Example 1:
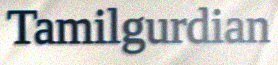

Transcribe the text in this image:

Tamilgurdian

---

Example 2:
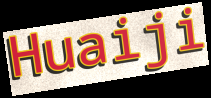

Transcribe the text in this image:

Huaiji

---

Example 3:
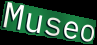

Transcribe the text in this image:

Museo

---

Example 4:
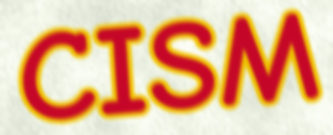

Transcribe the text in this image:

CISM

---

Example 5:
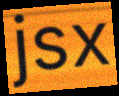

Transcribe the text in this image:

jsx